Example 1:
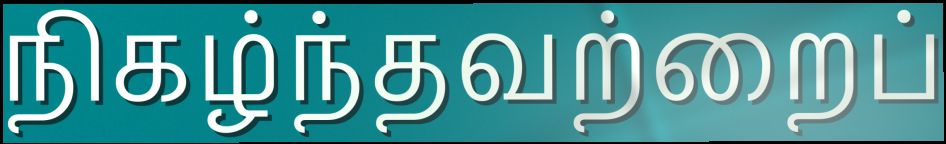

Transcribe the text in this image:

நிகழ்ந்தவற்றைப்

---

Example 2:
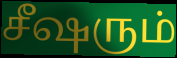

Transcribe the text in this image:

சீஷரும்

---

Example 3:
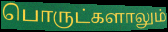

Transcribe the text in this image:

பொருட்களாலும்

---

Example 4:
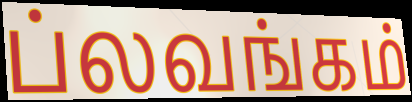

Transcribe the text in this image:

ப்லவங்கம்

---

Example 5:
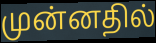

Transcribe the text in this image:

முன்னதில்